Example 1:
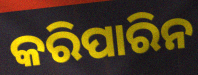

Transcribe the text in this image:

କରିପାରିନ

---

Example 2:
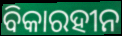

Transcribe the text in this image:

ବିକାରହୀନ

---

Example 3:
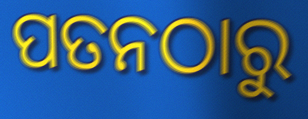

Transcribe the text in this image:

ପତନଠାରୁ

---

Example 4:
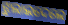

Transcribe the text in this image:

ଝୁଲାଇଦେଲେ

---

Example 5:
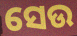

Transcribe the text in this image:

ସେଉ